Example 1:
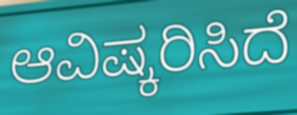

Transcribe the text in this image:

ಆವಿಷ್ಕರಿಸಿದೆ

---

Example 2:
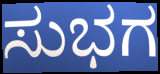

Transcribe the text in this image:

ಸುಭಗ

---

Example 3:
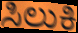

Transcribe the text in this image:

ಸಿಲುಕಿ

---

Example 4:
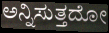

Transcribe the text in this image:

ಅನ್ನಿಸುತ್ತದೋ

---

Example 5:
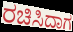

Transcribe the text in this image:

ರಚಿಸಿದಾಗ